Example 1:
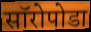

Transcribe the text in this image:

सॉरोपोडा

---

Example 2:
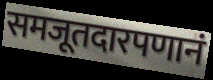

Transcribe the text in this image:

समजूतदारपणानं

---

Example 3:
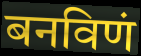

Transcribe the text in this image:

बनविणं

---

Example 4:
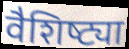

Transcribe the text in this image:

वैशिष्ट्या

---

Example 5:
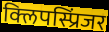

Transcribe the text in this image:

क्लिपस्प्रिंजर